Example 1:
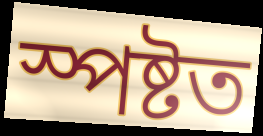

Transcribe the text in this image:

স্পষ্টত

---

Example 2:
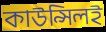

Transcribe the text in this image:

কাউন্সিলই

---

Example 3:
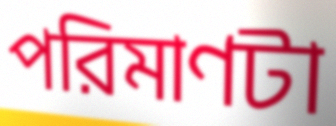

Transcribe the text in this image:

পরিমাণটা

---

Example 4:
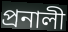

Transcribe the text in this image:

প্রনালী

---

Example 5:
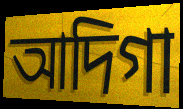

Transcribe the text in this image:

আদিগা